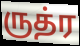
ருத்ர